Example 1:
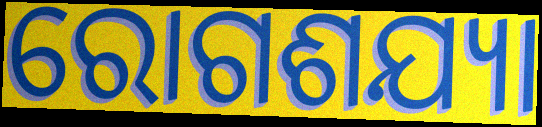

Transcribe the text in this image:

ରୋଗଶଯ୍ୟା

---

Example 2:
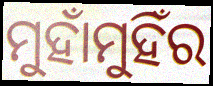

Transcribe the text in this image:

ମୁହାଁମୁହିଁର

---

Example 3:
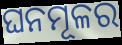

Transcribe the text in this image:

ଘନମୂଳର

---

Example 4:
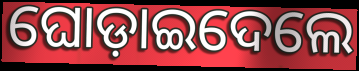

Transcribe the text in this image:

ଘୋଡ଼ାଇଦେଲେ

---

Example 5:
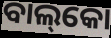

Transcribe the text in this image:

ବାଲ୍‌କୋ